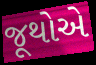
જૂથોએ